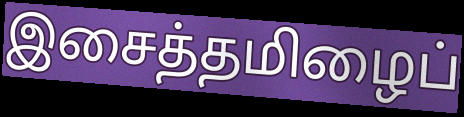
இசைத்தமிழைப்